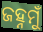
ଜହ୍ନମୁଁ